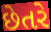
છેતરે